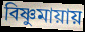
বিষ্ণুমায়ায়